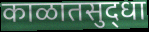
काळातसुद्धा